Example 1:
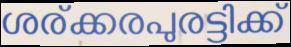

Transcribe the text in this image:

ശര്ക്കരപുരട്ടിക്ക്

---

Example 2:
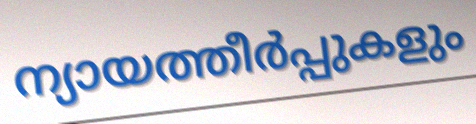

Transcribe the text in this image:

ന്യായത്തീർപ്പുകളും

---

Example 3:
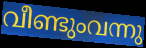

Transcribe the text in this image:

വീണ്ടുംവന്നു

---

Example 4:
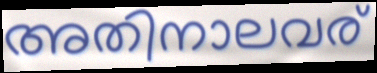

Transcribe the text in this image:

അതിനാലവര്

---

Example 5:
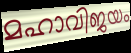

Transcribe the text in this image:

മഹാവിജയം